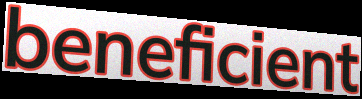
beneficient